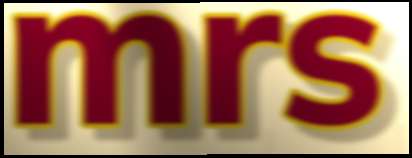
mrs